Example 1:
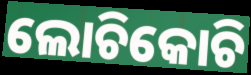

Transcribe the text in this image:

ଲୋଚିକୋଚି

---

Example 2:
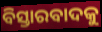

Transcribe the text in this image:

ବିସ୍ତାରବାଦକୁ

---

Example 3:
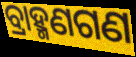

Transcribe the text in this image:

ବ୍ରାହ୍ମଣଗଣ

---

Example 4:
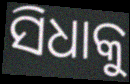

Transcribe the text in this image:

ସିଧାକୁ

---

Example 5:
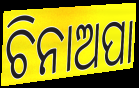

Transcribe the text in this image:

ଚିନାଅପା